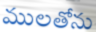
ములతోను